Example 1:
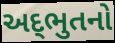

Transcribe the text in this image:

અદ્‌ભુતનો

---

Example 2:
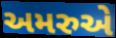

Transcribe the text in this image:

અમરુએ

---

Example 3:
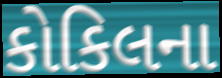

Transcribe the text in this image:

કોકિલના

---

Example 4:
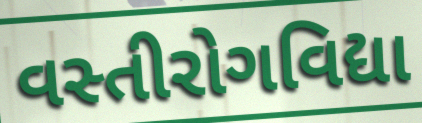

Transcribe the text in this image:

વસ્તીરોગવિદ્યા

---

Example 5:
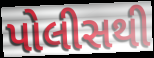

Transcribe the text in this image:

પોલીસથી